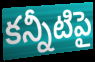
కన్నీటిపై